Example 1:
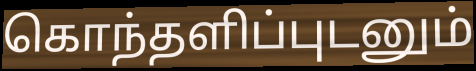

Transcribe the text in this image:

கொந்தளிப்புடனும்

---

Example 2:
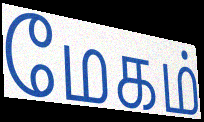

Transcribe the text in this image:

மேகம்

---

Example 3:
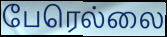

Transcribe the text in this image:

பேரெல்லை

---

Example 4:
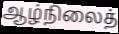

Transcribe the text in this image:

ஆழ்நிலைத்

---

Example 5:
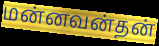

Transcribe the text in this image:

மன்னவன்தன்